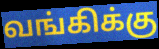
வங்கிக்கு